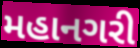
મહાનગરી